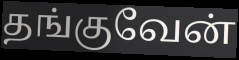
தங்குவேன்